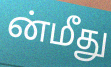
ன்மீது